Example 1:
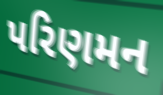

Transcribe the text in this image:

પરિણમન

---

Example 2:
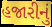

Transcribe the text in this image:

હજારીનું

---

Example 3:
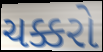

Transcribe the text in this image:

ચક્કરો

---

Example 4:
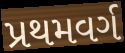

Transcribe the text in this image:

પ્રથમવર્ગ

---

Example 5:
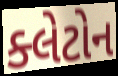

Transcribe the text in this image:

ક્લેટોન